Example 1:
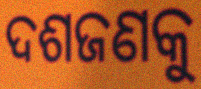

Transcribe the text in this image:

ଦଶଜଣକୁ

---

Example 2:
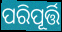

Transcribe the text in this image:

ପରିପୂର୍ତ୍ତି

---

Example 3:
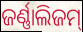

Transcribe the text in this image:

ଜର୍ଣ୍ଣାଲିଜମ୍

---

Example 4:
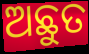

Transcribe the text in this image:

ଅଛୁତ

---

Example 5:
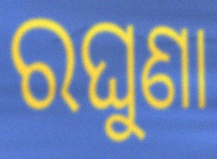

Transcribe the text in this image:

ରଘୁଣା